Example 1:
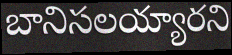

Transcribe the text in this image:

బానిసలయ్యారని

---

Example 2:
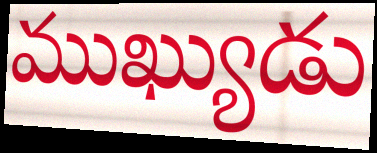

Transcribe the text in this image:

ముఖ్యుడు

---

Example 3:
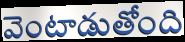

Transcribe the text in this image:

వెంటాడుతోంది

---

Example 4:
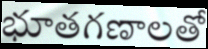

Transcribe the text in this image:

భూతగణాలతో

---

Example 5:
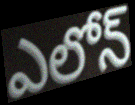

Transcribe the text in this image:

ఎలోన్